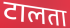
टालता